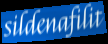
sildenafilit